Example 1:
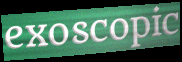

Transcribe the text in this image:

exoscopic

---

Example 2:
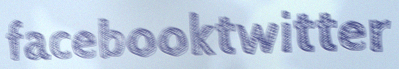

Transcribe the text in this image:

facebooktwitter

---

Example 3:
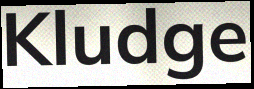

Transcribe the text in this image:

Kludge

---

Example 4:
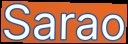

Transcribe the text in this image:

Sarao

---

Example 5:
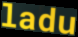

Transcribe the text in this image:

ladu